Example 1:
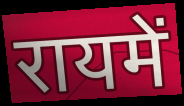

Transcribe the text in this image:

रायमें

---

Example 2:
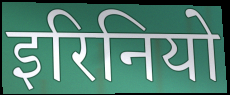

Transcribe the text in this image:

इरिनियो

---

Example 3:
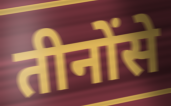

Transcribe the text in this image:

तीनोंसे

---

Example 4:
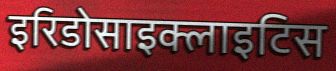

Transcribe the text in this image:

इरिडोसाइक्लाइटिस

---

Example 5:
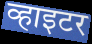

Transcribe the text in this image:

व्हाइटर